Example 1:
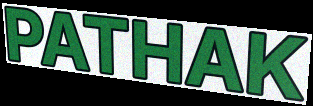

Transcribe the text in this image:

PATHAK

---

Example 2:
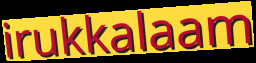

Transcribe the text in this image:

irukkalaam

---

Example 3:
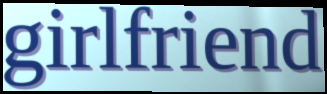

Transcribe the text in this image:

girlfriend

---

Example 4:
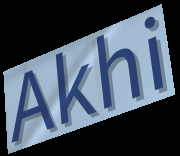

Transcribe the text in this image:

Akhi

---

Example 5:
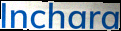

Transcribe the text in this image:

Inchara